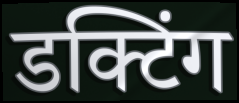
डक्टिंग